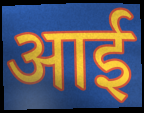
आई